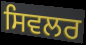
ਸਿਵਲਰ